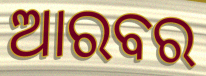
ଆରବର